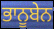
ਭਾਨੂਬੇਨ